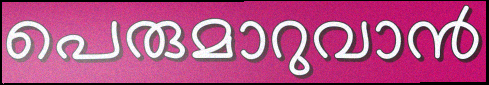
പെരുമാറുവാൻ